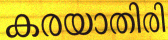
കരയാതിരി